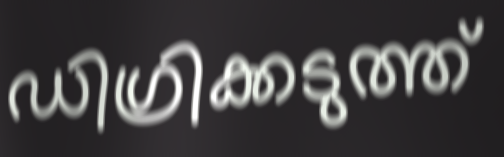
ഡിഗ്രിക്കടുത്ത്